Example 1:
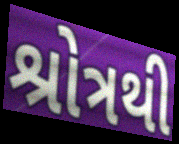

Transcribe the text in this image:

શ્રોત્રથી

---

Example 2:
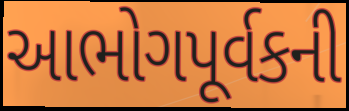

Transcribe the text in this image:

આભોગપૂર્વકની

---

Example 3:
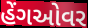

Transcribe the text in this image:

હેંગઓવર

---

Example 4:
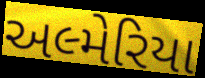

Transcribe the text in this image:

અલ્મેરિયા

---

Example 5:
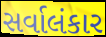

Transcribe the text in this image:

સર્વાલંકાર